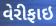
વેરીફાઇ